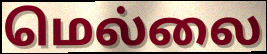
மெல்லை